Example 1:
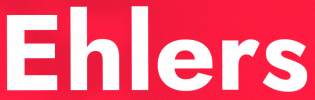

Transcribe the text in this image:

Ehlers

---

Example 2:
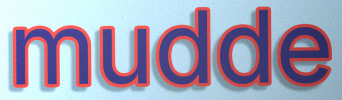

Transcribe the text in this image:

mudde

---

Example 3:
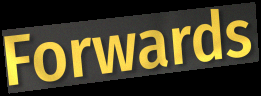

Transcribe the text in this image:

Forwards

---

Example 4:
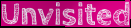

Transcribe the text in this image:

Unvisited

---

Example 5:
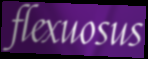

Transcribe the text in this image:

flexuosus